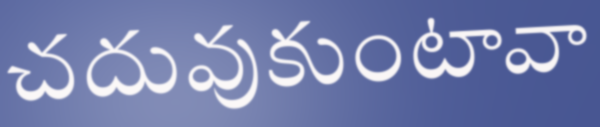
చదువుకుంటావా